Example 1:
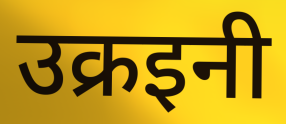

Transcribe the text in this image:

उक्रइनी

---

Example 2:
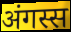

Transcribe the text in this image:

अंगस्स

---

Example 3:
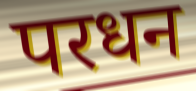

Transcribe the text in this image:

परधन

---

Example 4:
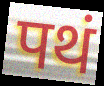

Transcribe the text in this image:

पथं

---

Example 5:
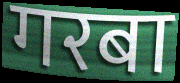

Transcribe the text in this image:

गरबा